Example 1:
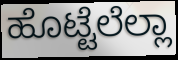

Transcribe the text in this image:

ಹೊಟ್ಟೆಲೆಲ್ಲಾ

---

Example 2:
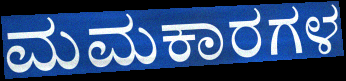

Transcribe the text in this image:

ಮಮಕಾರಗಳ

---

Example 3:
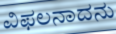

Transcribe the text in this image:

ವಿಫಲನಾದನು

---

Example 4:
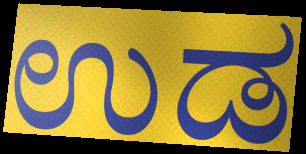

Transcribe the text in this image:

ಉಡ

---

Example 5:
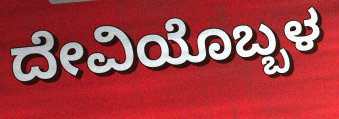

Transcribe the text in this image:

ದೇವಿಯೊಬ್ಬಳ